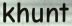
khunt